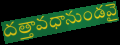
దత్తావధానుండవై